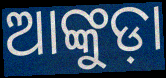
ଆଙ୍କୁଡ଼ା